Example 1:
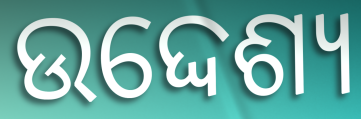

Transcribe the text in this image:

ଉଦ୍ଦେଶ୍ୟ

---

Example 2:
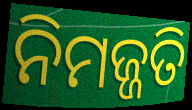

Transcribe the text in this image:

ନିମଜ୍ଜତି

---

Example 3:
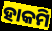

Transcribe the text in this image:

ହାକମି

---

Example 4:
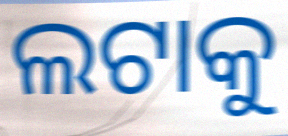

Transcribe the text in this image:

ଲଟାକୁ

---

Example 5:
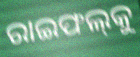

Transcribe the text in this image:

ରାଇଫଲ୍‍କୁ